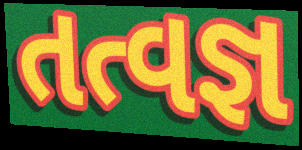
તત્વજ્ઞ